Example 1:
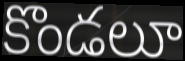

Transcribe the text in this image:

కొండలూ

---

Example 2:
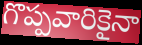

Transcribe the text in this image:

గొప్పవారికైనా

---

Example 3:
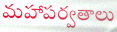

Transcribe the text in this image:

మహాపర్వతాలు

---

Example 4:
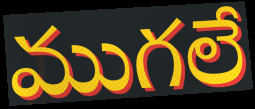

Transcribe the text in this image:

ముగలే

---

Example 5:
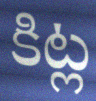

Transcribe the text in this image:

కిట్ల